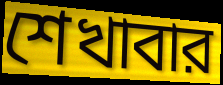
শেখাবার